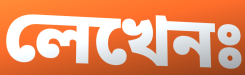
লেখেনঃ